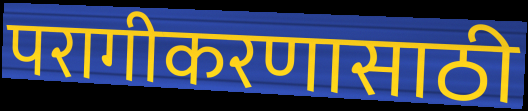
परागीकरणासाठी